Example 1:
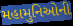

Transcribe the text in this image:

મહામુનિઓની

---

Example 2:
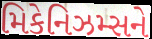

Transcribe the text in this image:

મિકેનિઝમ્સને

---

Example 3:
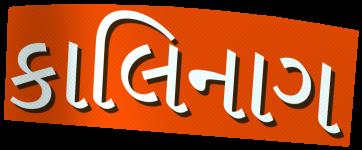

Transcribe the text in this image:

કાલિનાગ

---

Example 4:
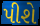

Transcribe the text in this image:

પીશે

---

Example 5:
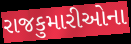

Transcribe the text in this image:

રાજકુમારીઓના